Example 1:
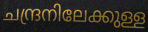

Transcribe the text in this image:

ചന്ദ്രനിലേക്കുള്ള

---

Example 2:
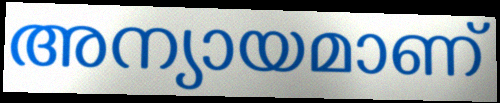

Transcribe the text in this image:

അന്യായമാണ്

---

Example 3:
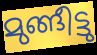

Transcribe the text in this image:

മുങ്ങീട്ടു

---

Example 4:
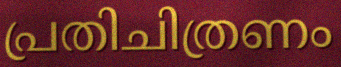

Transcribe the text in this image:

പ്രതിചിത്രണം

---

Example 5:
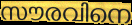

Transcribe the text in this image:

സൗരവിനെ